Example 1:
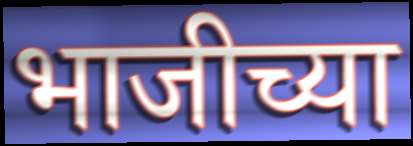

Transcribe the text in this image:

भाजीच्या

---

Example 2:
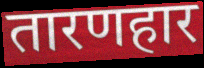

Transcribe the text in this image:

तारणहार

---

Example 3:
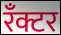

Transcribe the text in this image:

रँक्टर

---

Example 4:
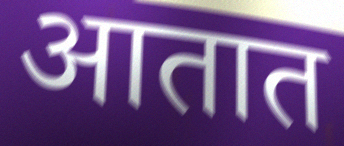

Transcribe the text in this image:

आतात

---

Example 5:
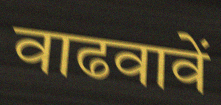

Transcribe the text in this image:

वाढवावें